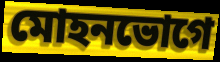
মোহনভোগে